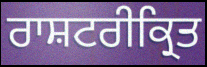
ਰਾਸ਼ਟਰੀਕ੍ਰਿਤ